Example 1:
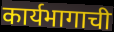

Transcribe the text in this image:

कार्यभागाची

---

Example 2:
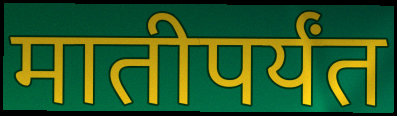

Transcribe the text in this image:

मातीपर्यंत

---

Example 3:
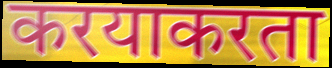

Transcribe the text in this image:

करयाकरता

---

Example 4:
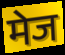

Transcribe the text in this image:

मेज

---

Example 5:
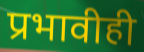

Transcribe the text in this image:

प्रभावीही